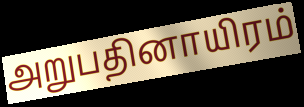
அறுபதினாயிரம்